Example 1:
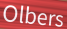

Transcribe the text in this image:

Olbers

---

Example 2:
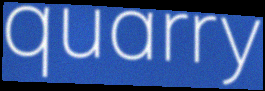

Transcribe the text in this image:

quarry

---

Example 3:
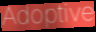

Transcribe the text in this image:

Adoptive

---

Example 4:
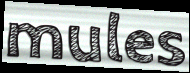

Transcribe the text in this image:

mules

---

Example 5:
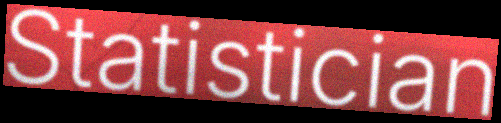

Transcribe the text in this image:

Statistician